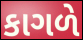
કાગળે